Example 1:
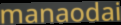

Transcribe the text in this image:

manaodai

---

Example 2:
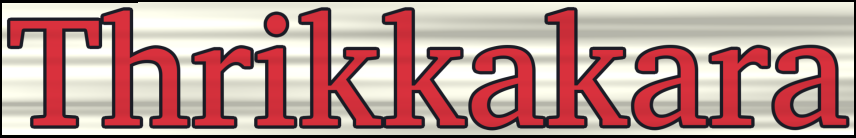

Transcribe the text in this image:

Thrikkakara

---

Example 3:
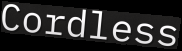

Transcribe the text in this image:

Cordless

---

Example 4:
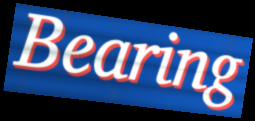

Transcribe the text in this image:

Bearing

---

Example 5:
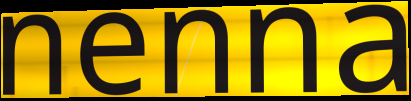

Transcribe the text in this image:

nenna